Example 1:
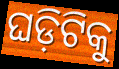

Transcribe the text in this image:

ଘଡ଼ିଟିକୁ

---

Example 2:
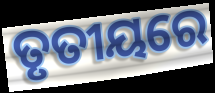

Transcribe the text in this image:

ତୃତୀୟରେ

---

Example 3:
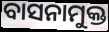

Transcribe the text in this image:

ବାସନାମୁକ୍ତ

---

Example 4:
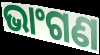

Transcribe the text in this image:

ଭାଂଗଣ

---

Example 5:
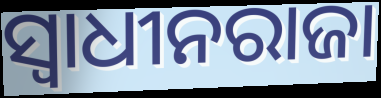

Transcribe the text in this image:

ସ୍ୱାଧୀନରାଜା